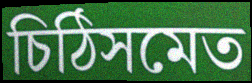
চিঠিসমেত